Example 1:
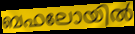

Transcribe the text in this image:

ബഫലോയിൽ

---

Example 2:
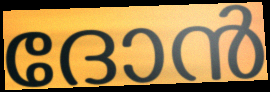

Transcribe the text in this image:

ദോൻ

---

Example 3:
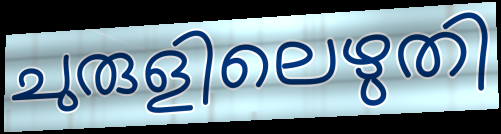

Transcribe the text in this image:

ചുരുളിലെഴുതി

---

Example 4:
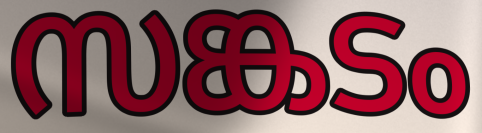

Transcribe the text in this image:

സങ്കടം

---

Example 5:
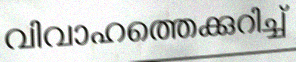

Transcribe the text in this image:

വിവാഹത്തെക്കുറിച്ച്